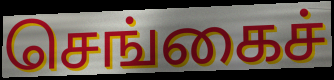
செங்கைச்